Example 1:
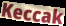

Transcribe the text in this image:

Keccak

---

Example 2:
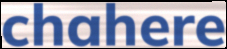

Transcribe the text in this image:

chahere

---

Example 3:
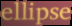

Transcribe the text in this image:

ellipse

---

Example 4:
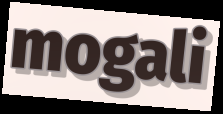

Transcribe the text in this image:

mogali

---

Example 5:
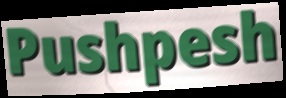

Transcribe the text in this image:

Pushpesh